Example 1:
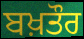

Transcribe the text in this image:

ਬਖ਼ਤੌਰ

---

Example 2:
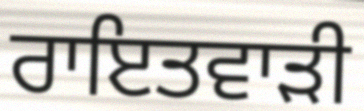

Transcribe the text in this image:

ਰਾਇਤਵਾੜੀ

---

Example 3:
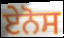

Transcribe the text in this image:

ਏਨੋਸ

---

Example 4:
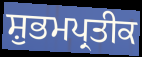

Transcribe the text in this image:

ਸ਼ੁਭਮਪ੍ਰਤੀਕ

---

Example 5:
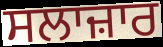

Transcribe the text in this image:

ਸਲਾਜ਼ਾਰ